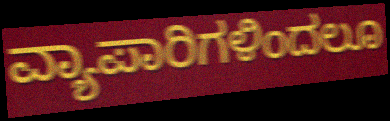
ವ್ಯಾಪಾರಿಗಳಿಂದಲೂ